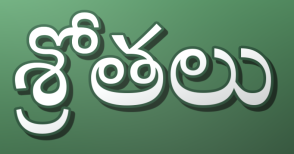
శ్రోతలు